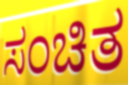
ಸಂಚಿತ